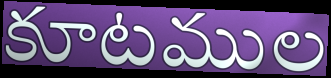
కూటముల